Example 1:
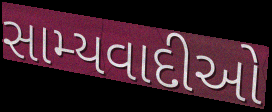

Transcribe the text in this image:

સામ્યવાદીઓ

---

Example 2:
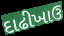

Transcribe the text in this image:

દાઢીખાઉ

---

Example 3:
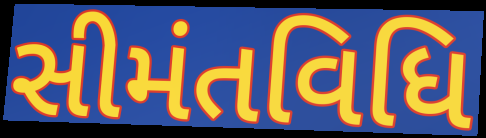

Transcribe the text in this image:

સીમંતવિધિ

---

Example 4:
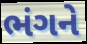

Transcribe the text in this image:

ભંગને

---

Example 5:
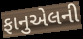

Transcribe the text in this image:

ફાનુએલની